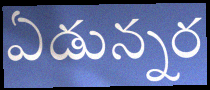
ఏడున్నర